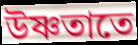
উষ্ণতাতে